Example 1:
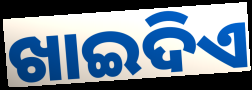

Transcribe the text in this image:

ଖାଇଦିଏ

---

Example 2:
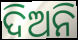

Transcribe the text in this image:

ଦିଅନି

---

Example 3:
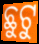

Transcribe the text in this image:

ଛୁଟୁ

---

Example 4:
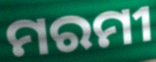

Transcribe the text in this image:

ମରମୀ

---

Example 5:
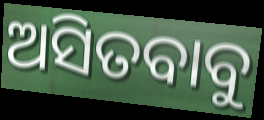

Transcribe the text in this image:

ଅସିତବାବୁ